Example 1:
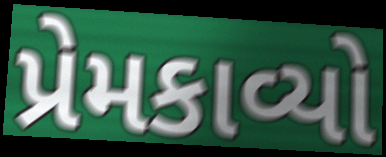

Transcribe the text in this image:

પ્રેમકાવ્યો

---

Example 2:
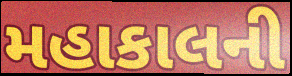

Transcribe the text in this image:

મહાકાલની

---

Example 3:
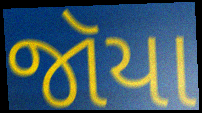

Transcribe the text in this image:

જૉયા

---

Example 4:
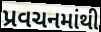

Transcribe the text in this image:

પ્રવચનમાંથી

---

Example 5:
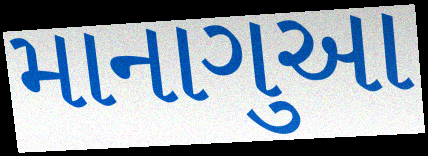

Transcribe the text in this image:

માનાગુઆ